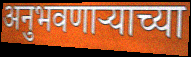
अनुभवणार्‍याच्या